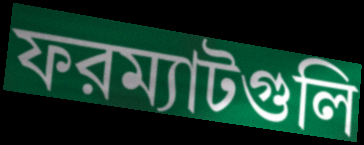
ফরম্যাটগুলি